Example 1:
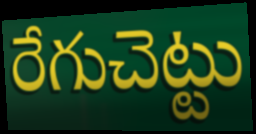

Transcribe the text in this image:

రేగుచెట్టు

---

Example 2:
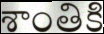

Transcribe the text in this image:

శాంతికి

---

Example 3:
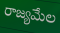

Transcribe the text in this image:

రాజ్యమేల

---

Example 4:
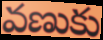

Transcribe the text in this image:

వణుకు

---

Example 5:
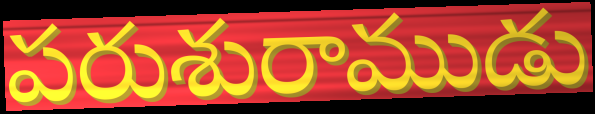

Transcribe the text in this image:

పరుశురాముడు